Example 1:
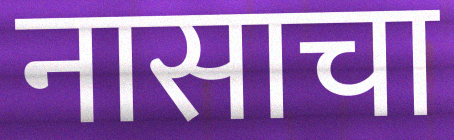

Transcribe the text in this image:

नासाचा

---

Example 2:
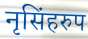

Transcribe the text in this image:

नृसिंहरुप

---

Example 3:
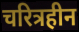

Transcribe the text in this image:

चरित्रहीन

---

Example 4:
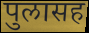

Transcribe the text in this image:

पुलासह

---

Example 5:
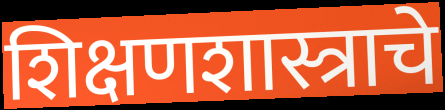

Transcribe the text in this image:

शिक्षणशास्त्राचे